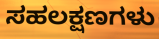
ಸಹಲಕ್ಷಣಗಳು